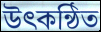
উৎকন্ঠিত